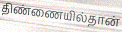
திண்ணையில்தான்